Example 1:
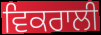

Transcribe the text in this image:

ਵਿਕਰਾਲੀ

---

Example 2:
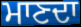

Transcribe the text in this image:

ਮਾਣਦਾ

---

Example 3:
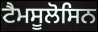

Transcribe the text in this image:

ਟੈਮਸੂਲੋਸਿਨ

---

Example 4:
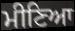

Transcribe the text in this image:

ਮੀਣਿਆ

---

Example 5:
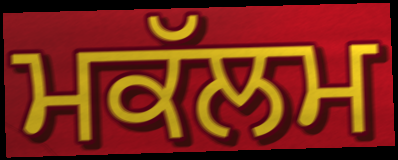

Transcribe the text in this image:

ਮਕੱਲਮ